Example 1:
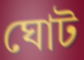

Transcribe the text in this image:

ঘোট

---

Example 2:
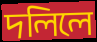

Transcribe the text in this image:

দলিলে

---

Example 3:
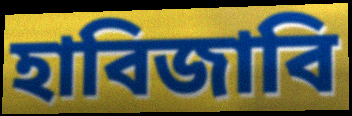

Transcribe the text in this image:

হাবিজাবি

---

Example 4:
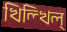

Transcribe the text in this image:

খিল্খিল্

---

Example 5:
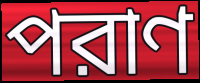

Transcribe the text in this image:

পরাণ